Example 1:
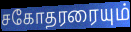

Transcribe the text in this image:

சகோதரரையும்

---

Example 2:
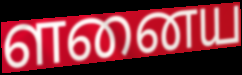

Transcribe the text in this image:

ளனைய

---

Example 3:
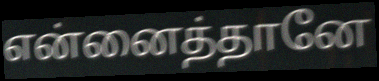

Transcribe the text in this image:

என்னைத்தானே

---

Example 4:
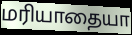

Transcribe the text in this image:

மரியாதையா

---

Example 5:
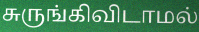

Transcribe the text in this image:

சுருங்கிவிடாமல்